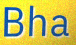
Bha